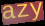
azy